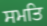
ਸਮਤਿ